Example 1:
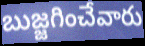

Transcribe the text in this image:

బుజ్జగించేవారు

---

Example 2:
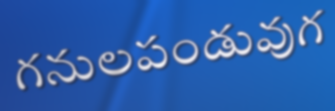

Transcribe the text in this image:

గనులపండువుగ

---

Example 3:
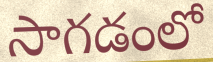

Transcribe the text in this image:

సాగడంలో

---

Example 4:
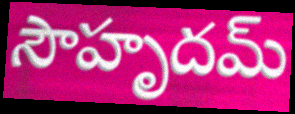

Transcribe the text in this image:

సౌహృదమ్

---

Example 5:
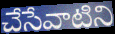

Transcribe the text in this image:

చేసేవాటిని